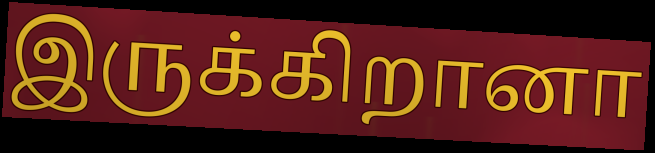
இருக்கிறானா